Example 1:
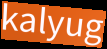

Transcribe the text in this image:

kalyug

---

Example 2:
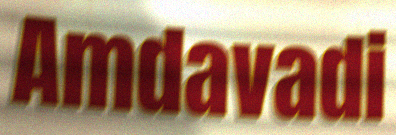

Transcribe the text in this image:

Amdavadi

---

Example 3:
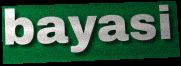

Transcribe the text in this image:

bayasi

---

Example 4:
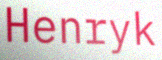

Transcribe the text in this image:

Henryk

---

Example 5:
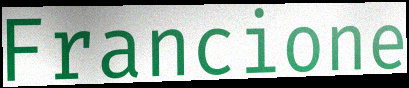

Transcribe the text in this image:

Francione